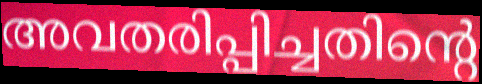
അവതരിപ്പിച്ചതിന്റെ